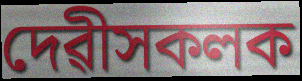
দেৱীসকলক